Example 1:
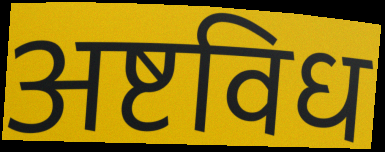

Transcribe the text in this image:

अष्टविध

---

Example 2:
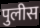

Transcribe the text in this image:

पुलीस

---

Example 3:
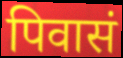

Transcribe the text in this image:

पिवासं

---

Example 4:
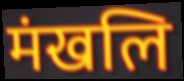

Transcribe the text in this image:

मंखलि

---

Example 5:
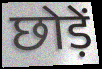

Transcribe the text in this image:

छोड़ें